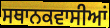
ਸਥਾਨਕਵਾਸੀਆਂ